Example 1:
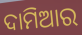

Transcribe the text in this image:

ଦାମିଆର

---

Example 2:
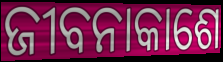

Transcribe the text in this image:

ଜୀବନାକାଶେ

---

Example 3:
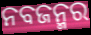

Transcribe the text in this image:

ନବଜନ୍ମର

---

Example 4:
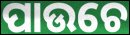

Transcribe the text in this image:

ପାଉଚେ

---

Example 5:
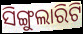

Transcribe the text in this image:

ସିଙ୍ଗୁଲାରିଟି